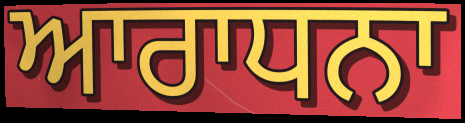
ਆਰਾਧਨਾ